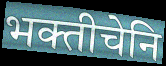
भक्तीचेनि